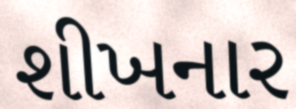
શીખનાર